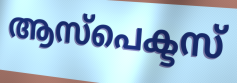
ആസ്പെക്ടസ്